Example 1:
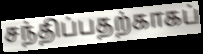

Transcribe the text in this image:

சந்திப்பதற்காகப்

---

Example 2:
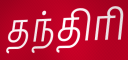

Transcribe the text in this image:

தந்திரி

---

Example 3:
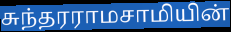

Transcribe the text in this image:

சுந்தரராமசாமியின்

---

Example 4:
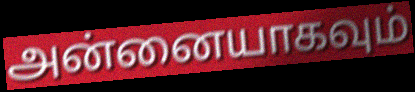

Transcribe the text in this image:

அன்னையாகவும்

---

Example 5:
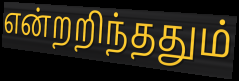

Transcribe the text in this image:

என்றறிந்ததும்